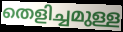
തെളിച്ചമുള്ള